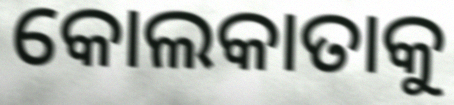
କୋଲକାତାକୁ